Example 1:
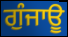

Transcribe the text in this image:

ਗੁੰਜਾਊ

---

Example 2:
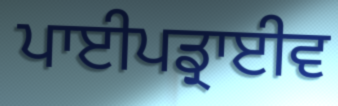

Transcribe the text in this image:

ਪਾਈਪਡ੍ਰਾਈਵ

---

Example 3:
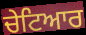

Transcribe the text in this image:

ਚੇਟਿਆਰ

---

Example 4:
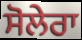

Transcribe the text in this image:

ਸੋਲੇਰਾ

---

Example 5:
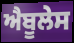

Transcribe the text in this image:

ਐਬੂਲੇਸ